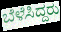
ಬೆಳೆಸಿದ್ದರು